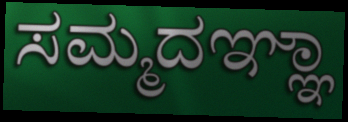
ಸಮ್ಮದಞ್ಞಾ